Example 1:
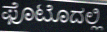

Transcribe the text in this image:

ಫೊಟೊದಲ್ಲಿ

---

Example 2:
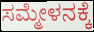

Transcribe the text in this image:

ಸಮ್ಮೇಳನಕ್ಕೆ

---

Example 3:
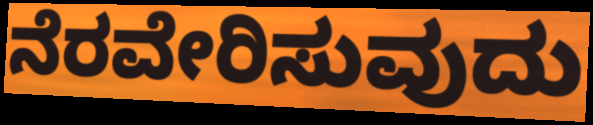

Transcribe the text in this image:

ನೆರವೇರಿಸುವುದು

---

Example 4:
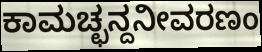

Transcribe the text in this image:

ಕಾಮಚ್ಛನ್ದನೀವರಣಂ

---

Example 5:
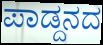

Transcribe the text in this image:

ಪಾಡ್ದನದ